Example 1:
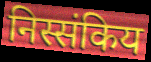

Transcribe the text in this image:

निस्संकिय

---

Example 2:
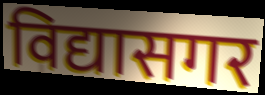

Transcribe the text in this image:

विद्यासगर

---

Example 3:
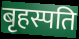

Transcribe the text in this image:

बृहस्पति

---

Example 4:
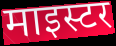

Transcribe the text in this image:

माइस्टर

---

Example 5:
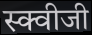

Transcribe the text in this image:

स्क्वीजी